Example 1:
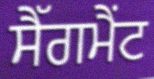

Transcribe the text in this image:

ਸੈੱਗਮੈਂਟ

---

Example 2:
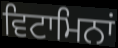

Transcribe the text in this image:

ਵਿਟਾਮਿਨਾਂ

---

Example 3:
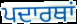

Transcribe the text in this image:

ਪਦਾਰਥਾਂ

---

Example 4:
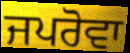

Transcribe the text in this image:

ਜਪਰੋਵਾ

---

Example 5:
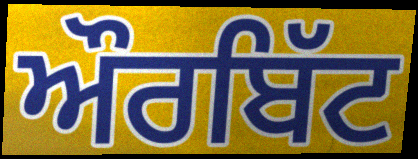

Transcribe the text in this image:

ਔਰਬਿੱਟ